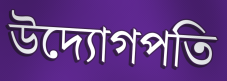
উদ্যোগপতি